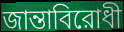
জান্তাবিরোধী